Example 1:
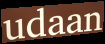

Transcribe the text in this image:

udaan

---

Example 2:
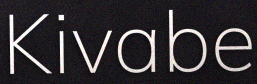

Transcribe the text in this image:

Kivabe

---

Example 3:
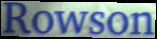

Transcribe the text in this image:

Rowson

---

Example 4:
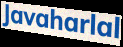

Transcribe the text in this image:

Javaharlal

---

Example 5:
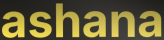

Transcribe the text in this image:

ashana